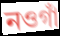
নওগাঁ